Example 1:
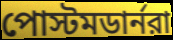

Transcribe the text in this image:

পোস্টমডার্নরা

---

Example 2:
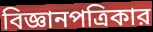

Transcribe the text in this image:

বিজ্ঞানপত্রিকার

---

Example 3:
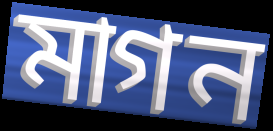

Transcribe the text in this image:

মাগন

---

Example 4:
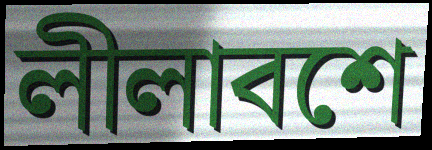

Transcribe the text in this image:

লীলাবশে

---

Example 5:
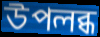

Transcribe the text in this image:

উপলব্ধ